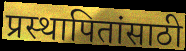
प्रस्थापितांसाठी